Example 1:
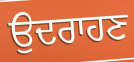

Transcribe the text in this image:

ਉਦਰਾਹਣ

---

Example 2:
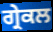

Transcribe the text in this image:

ਗ੍ਰੇਕਲ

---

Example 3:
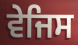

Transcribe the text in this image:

ਵੇਜਿਸ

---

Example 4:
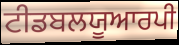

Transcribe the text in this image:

ਟੀਡਬਲਯੂਆਰਪੀ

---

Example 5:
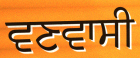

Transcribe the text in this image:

ਵਣਵਾਸੀ